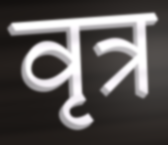
वृत्र